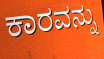
ಕಾರವನ್ನು